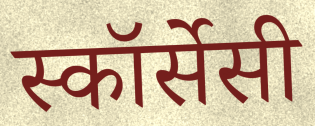
स्कॉर्सेसी